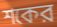
শকের